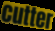
cutter